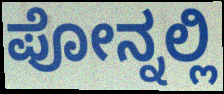
ಪೋನ್ನಲ್ಲಿ